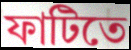
ফাটিতে